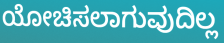
ಯೋಚಿಸಲಾಗುವುದಿಲ್ಲ